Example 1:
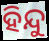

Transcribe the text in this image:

ହିନ୍ଦୁ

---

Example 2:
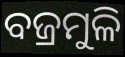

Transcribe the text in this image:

ବଜ୍ରମୁଳି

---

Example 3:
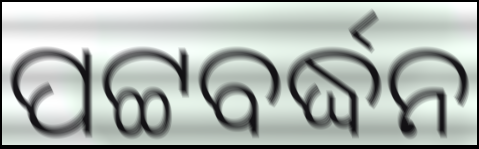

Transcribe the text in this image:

ପଟ୍ଟବର୍ଦ୍ଧନ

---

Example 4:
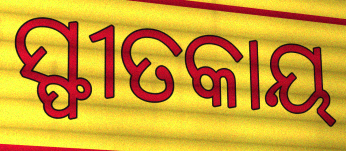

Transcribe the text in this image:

ସ୍ଫୀତକାୟ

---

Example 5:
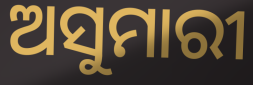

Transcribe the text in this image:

ଅସୁମାରୀ